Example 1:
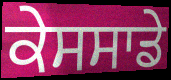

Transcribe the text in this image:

ਕੇਸਸਾਡੇ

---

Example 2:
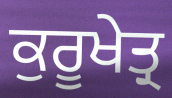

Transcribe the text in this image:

ਕੁਰੂਖੇਤ੍ਰ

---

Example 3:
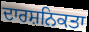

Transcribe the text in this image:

ਦਾਰਸ਼ਨਿਕਤਾ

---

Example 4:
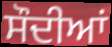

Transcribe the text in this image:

ਸੌਦੀਆਂ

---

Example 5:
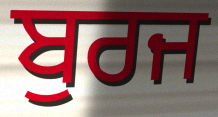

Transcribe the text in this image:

ਬੁਰਜ